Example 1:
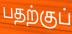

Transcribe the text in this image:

பதற்குப்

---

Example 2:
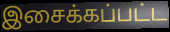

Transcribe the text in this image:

இசைக்கப்பட்ட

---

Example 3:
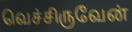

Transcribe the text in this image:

வெச்சிருவேன்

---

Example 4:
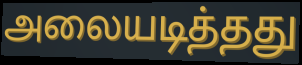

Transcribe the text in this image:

அலையடித்தது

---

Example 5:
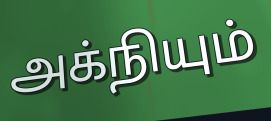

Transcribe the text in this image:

அக்நியும்